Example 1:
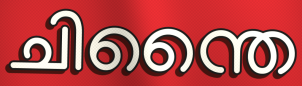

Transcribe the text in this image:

ചിന്തൈ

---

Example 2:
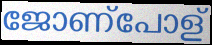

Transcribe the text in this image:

ജോണ്പോള്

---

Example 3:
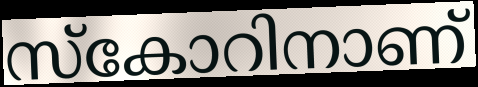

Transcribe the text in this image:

സ്കോറിനാണ്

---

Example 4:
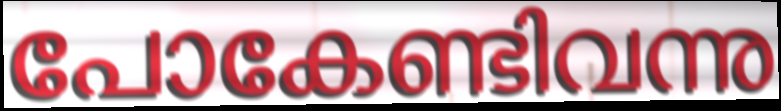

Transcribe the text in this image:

പോകേണ്ടിവന്നു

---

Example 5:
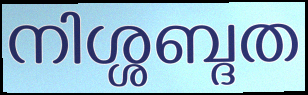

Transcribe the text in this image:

നിശ്ശബ്ദത